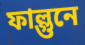
ফাল্গুনে